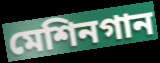
মেশিনগান